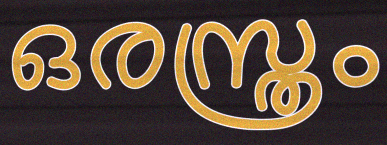
ഒരസ്ത്രം